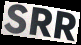
SRR